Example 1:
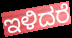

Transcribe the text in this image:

ಇಳಿದರೆ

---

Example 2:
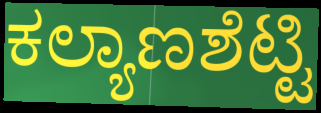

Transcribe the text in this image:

ಕಲ್ಯಾಣಶೆಟ್ಟಿ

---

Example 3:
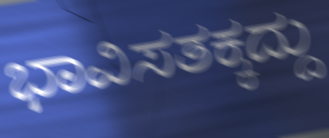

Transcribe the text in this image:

ಭಾವಿಸತಕ್ಕದ್ದು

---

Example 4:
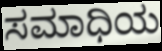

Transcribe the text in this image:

ಸಮಾಧಿಯ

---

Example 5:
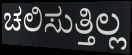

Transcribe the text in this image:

ಚಲಿಸುತ್ತಿಲ್ಲ